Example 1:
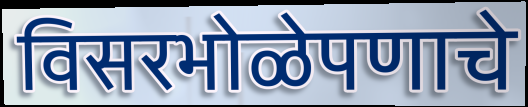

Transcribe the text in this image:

विसरभोळेपणाचे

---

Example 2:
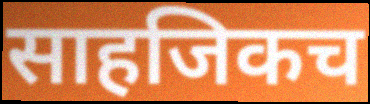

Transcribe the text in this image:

साहजिकच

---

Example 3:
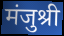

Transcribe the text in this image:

मंजुश्री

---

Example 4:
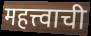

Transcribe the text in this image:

महत्त्वाची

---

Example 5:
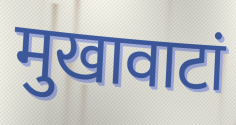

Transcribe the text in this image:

मुखावाटां